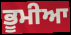
ਭੂਮੀਆ